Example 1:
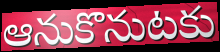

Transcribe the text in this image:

ఆనుకొనుటకు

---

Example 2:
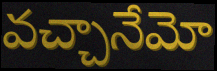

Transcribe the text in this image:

వచ్చానేమో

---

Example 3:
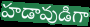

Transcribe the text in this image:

హడావుడిగా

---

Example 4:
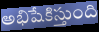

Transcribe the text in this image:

అభిషేకిస్తుంది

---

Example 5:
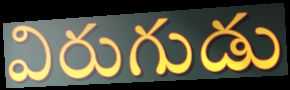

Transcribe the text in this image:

విరుగుడు